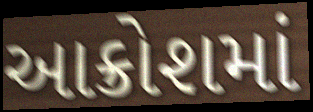
આક્રોશમાં